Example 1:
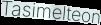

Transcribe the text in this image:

Tasimelteon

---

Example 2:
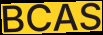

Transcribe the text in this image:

BCAS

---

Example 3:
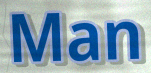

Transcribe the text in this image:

Man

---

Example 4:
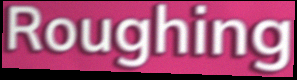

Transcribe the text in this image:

Roughing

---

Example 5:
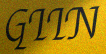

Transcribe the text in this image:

GIIN